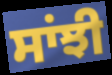
ਸਾਂਝੀ